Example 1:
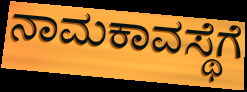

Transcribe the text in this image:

ನಾಮಕಾವಸ್ಥೆಗೆ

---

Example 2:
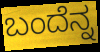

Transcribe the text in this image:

ಬಂದೆನ್ನ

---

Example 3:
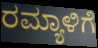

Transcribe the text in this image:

ರಮ್ಯಾಳಿಗೆ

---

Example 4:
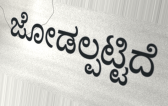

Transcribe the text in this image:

ಜೋಡಲ್ಪಟ್ಟಿದೆ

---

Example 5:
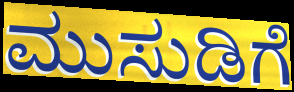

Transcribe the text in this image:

ಮುಸುಡಿಗೆ